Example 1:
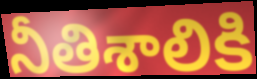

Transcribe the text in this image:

నీతిశాలికి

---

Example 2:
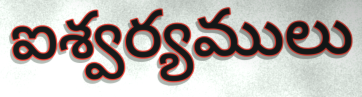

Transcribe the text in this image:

ఐశ్వర్యములు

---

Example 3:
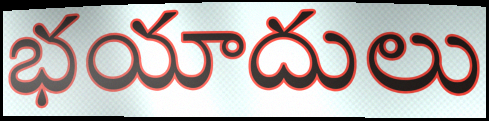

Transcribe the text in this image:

భయాదులు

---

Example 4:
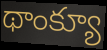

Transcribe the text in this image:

థాంక్యూ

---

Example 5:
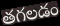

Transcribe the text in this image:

తగలడం